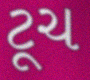
ટૂચ